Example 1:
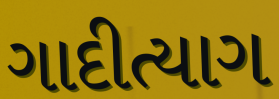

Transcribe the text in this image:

ગાદીત્યાગ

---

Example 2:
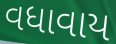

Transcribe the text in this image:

વધાવાય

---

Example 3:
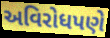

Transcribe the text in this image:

અવિરોધપણે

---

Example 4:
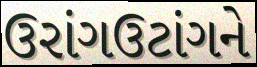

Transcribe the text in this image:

ઉરાંગઉટાંગને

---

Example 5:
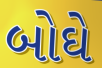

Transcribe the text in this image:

બોઘે